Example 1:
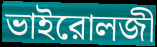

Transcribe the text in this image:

ভাইরোলজী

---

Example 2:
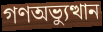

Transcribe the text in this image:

গণঅভ্যুত্থান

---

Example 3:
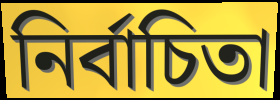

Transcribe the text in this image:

নির্বাচিতা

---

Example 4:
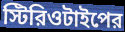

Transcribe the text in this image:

স্টিরিওটাইপের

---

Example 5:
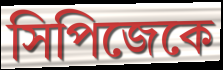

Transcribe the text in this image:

সিপিজেকে